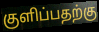
குளிப்பதற்கு